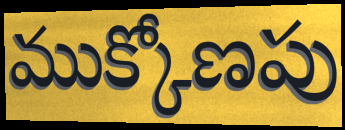
ముక్కోణపు